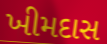
ખીમદાસ